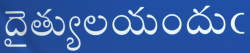
దైత్యులయందుఁ